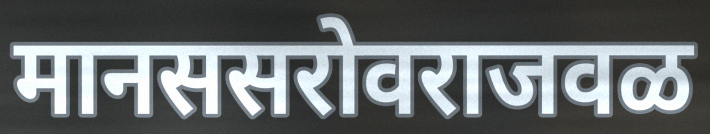
मानससरोवराजवळ